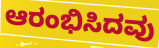
ಆರಂಭಿಸಿದವು